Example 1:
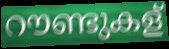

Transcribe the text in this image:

റൗണ്ടുകള്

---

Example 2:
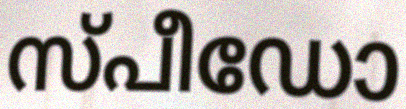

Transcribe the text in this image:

സ്പീഡോ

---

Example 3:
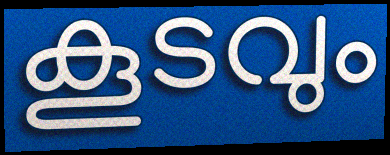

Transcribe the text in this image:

കൂടവും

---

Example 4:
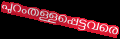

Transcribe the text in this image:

പുറംതള്ളപ്പെട്ടവരെ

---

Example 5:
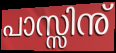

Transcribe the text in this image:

പാസ്സിനു്